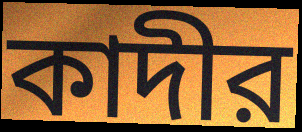
কাদীর